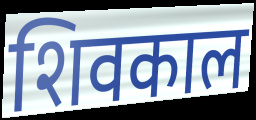
शिवकाल